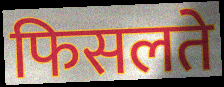
फिसलते